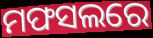
ମଫସଲରେ